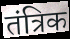
तंत्रिक